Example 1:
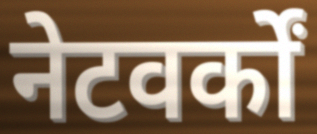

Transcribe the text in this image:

नेटवर्कों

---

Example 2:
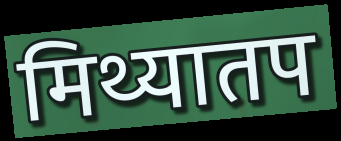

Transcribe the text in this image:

मिथ्यातप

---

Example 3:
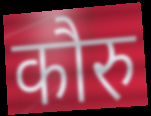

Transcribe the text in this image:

कौरु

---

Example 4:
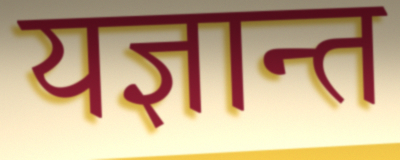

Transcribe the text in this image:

यज्ञान्त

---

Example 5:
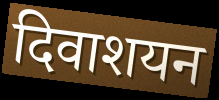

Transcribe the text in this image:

दिवाशयन